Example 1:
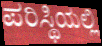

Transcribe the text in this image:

ಪರಿಸ್ಥಿಯಲ್ಲಿ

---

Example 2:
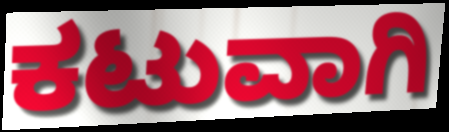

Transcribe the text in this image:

ಕಟುವಾಗಿ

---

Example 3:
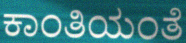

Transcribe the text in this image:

ಕಾಂತಿಯಂತೆ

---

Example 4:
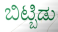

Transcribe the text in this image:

ಬಿಟ್ಬಿಡು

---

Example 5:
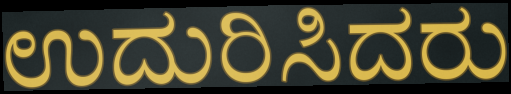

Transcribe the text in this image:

ಉದುರಿಸಿದರು